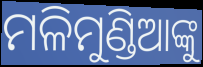
ମଳିମୁଣ୍ଡିଆଙ୍କୁ